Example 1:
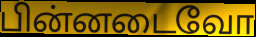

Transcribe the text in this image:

பின்னடைவோ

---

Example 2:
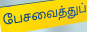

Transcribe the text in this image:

பேசவைத்துப்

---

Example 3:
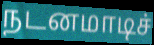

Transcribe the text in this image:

நடனமாடிச்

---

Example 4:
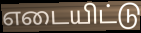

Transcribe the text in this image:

எடையிட்டு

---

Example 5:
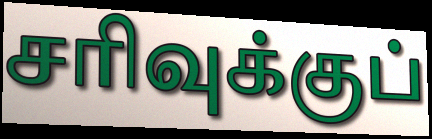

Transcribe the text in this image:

சரிவுக்குப்